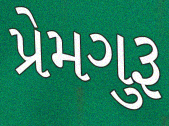
પ્રેમગુરૂ